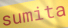
sumita